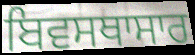
ਬਿਵਸਥਾਸਾਰ